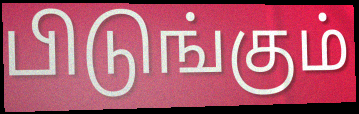
பிடுங்கும்